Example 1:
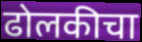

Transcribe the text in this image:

ढोलकीचा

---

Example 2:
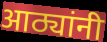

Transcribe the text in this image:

आठ्यांनी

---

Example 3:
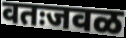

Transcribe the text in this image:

वतःजवळ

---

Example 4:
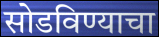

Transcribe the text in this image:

सोडविण्याचा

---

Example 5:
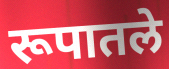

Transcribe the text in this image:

रूपातले